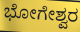
ಭೋಗೇಶ್ವರ